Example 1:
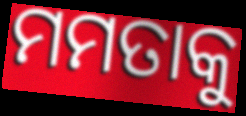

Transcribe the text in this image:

ମମତାକୁ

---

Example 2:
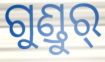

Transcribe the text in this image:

ଗୁଣ୍ଡୁର୍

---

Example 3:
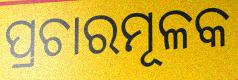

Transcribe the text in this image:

ପ୍ରଚାରମୂଳକ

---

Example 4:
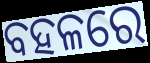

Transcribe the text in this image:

ବହଳରେ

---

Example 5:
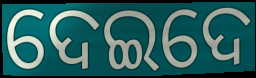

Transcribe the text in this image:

ଦେଇଦେ